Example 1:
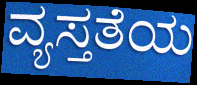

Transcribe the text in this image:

ವ್ಯಸ್ತತೆಯ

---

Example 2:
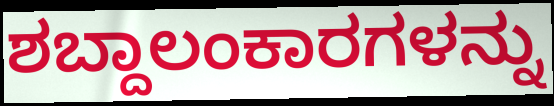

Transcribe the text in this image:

ಶಬ್ದಾಲಂಕಾರಗಳನ್ನು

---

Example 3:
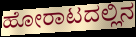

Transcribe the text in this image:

ಹೋರಾಟದಲ್ಲಿನ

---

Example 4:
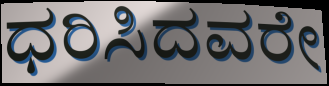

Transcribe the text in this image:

ಧರಿಸಿದವರೇ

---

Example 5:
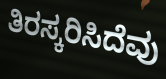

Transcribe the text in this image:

ತಿರಸ್ಕರಿಸಿದೆವು